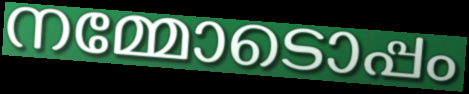
നമ്മോടൊപ്പം